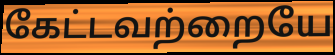
கேட்டவற்றையே